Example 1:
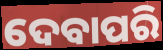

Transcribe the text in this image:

ଦେବାପରି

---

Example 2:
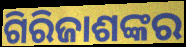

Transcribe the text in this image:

ଗିରିଜାଶଙ୍କର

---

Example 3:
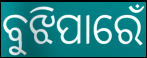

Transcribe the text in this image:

ବୁଝିପାରେଁ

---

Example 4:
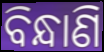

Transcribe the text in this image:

ବିନ୍ଧାଣି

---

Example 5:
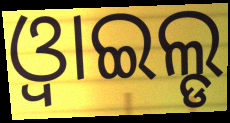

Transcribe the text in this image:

ଓ୍ବାଇଲ୍ଡ